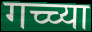
गच्च्या